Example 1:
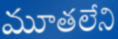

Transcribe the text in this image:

మూతలేని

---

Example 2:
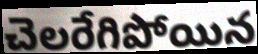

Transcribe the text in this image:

చెలరేగిపోయిన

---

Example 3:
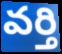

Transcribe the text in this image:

వర్తి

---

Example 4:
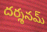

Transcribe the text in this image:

దర్శనమ్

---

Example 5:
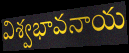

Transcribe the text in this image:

విశ్వభావనాయ